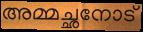
അമ്മച്ഛനോട്